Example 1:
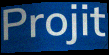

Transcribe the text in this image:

Projit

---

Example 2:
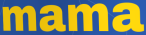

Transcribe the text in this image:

mama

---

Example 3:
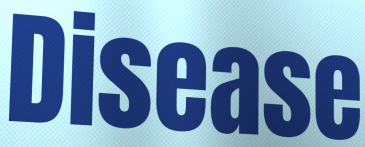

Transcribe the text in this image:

Disease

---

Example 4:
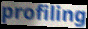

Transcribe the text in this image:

profiling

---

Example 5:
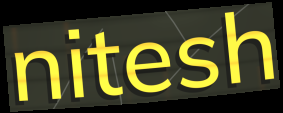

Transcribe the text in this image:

nitesh